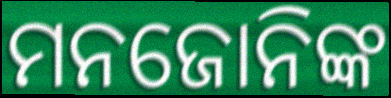
ମନଜୋନିଙ୍କ